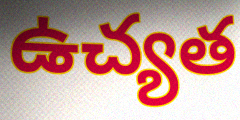
ఉచ్యత